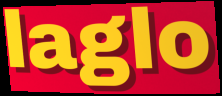
laglo